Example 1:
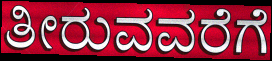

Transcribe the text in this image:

ತೀರುವವರೆಗೆ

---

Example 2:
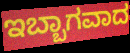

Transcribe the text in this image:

ಇಬ್ಬಾಗವಾದ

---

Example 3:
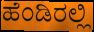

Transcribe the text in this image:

ಹೆಂಡಿರಲ್ಲಿ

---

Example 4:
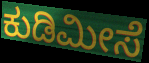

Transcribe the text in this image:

ಕುಡಿಮೀಸೆ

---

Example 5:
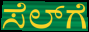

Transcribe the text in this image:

ಸೆಲ್‍ಗೆ